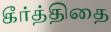
கீர்த்திதை